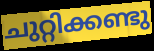
ചുറ്റിക്കണ്ടു